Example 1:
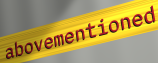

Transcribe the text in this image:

abovementioned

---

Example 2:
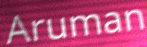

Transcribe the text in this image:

Aruman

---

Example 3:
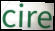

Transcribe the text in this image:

cire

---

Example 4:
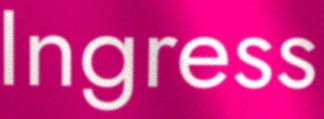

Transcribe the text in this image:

Ingress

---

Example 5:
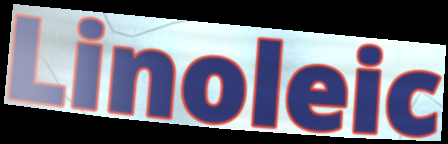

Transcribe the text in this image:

Linoleic